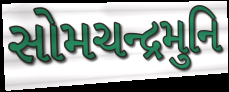
સોમચન્દ્રમુનિ